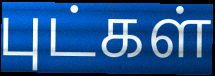
புட்கள்